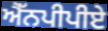
ਐੱਨਪੀਪੀਏ